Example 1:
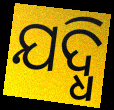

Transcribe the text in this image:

ଯଦ୍ଧି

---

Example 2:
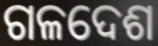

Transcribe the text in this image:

ଗଳଦେଶ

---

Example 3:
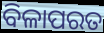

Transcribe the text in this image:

ବିଳାପରତ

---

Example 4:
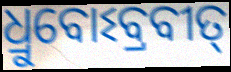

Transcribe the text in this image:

ଧ୍ରୁବୋଽବ୍ରବୀତ୍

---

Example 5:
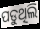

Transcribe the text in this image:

ପଡୁଥିଲି